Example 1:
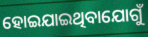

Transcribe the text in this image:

ହୋଇଯାଇଥିବାଯୋଗୁଁ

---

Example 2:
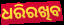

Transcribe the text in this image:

ଧରିରଖିବ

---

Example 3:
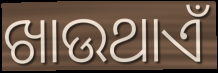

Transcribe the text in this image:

ଖାଉଥାଏଁ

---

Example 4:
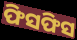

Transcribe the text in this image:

ଫିସଫିସ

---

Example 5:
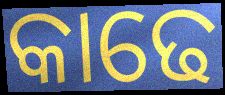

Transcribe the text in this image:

କାଢେ